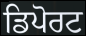
ਡਿਪੋਰਟ